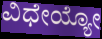
ವಿಧೇಯ್ಯೋ